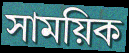
সাময়িক